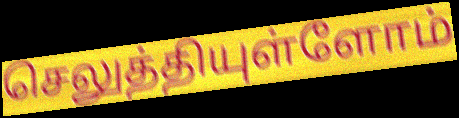
செலுத்தியுள்ளோம்